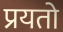
प्रयतो